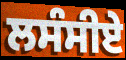
ਲਸੰਸੀਏ